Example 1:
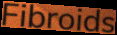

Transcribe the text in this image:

Fibroids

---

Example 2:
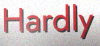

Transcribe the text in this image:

Hardly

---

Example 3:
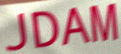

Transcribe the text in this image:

JDAM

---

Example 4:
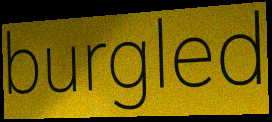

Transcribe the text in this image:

burgled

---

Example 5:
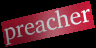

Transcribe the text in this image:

preacher